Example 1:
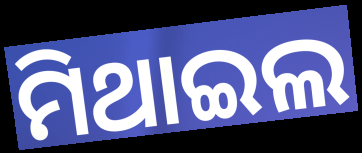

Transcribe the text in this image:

ମିଥାଇଲ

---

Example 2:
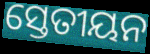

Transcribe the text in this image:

ସ୍ତେତୀୟନ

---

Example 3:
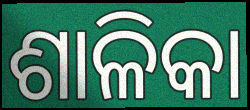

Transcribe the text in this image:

ଶାଳିକା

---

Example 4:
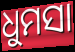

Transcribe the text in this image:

ଧୁମସା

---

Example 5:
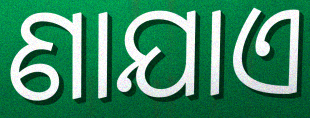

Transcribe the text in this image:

ଣାଯାଏ